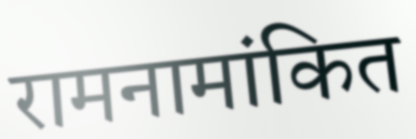
रामनामांकित